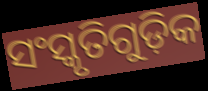
ସଂସ୍କୃତିଗୁଡ଼ିକ